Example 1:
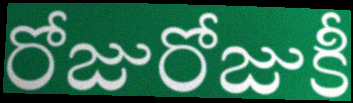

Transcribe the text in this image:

రోజురోజుకీ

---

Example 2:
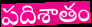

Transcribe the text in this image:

పదిశాతం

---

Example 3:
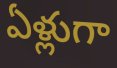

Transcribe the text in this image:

ఏళ్లుగా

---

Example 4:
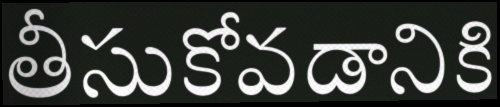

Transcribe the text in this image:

తీసుకోవడానికి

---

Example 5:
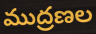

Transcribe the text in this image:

ముద్రణల